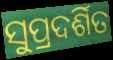
ସୁପ୍ରଦର୍ଶିତ